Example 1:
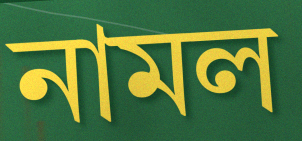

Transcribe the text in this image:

নামল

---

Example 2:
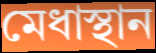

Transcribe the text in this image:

মেধাস্থান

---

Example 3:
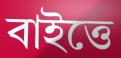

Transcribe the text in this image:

বাইত্তে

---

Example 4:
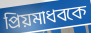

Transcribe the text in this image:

প্রিয়মাধবকে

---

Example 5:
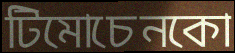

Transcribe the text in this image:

টিমোচেনকো